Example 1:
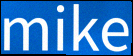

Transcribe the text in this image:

mike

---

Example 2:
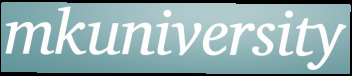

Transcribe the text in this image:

mkuniversity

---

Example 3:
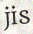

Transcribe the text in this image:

jis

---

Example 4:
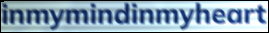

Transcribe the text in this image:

inmymindinmyheart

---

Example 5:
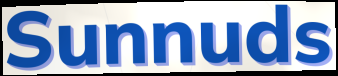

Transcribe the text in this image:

Sunnuds